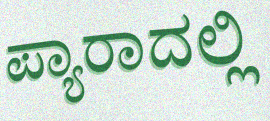
ಪ್ಯಾರಾದಲ್ಲಿ